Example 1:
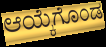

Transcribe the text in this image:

ಆಯ್ಕೆಗೊಂಡ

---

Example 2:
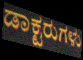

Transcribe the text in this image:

ಡಾಕ್ಟರುಗಳು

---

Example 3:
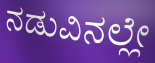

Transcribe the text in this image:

ನಡುವಿನಲ್ಲೇ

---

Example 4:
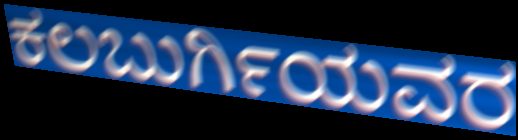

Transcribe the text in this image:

ಕಲಬುರ್ಗಿಯವರ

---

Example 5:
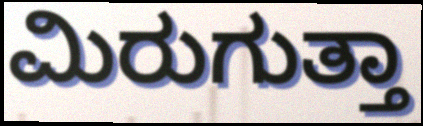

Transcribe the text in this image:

ಮಿರುಗುತ್ತಾ